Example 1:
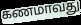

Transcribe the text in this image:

கணமாவது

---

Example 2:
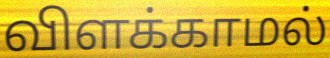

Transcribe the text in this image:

விளக்காமல்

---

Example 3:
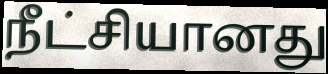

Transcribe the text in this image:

நீட்சியானது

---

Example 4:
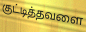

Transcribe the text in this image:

குட்டித்தவளை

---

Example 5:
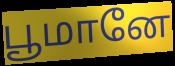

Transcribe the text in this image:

பூமானே